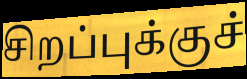
சிறப்புக்குச்